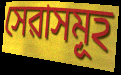
সেৱাসমূহ